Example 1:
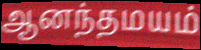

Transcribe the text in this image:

ஆனந்தமயம்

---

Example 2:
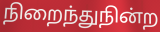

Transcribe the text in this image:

நிறைந்துநின்ற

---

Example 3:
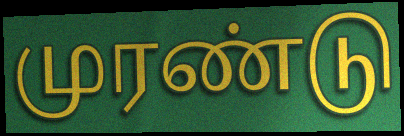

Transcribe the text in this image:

முரண்டு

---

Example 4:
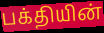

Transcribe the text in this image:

பக்தியின்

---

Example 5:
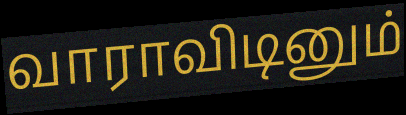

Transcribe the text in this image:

வாராவிடினும்